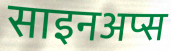
साइनअप्स